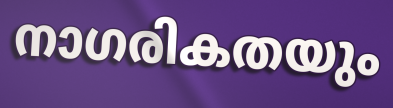
നാഗരികതയും